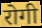
रोगी